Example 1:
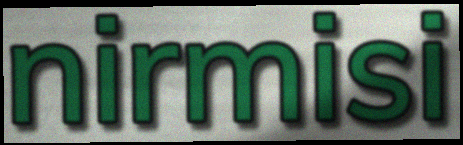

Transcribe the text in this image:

nirmisi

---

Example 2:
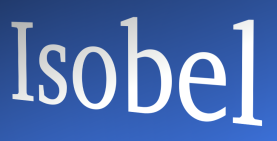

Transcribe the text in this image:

Isobel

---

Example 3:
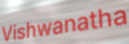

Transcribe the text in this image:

Vishwanatha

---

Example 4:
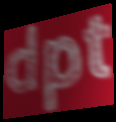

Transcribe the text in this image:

dpt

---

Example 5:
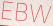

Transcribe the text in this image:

EBW